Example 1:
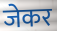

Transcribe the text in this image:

जेकर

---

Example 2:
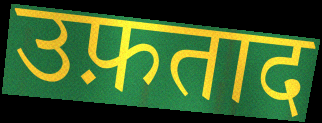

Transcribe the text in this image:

उफ़ताद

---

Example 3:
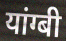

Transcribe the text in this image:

यांग्बी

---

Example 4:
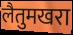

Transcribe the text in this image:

लैतुमखरा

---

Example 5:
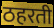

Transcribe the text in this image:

ठहरती